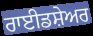
ਰਾਈਡਸ਼ੇਅਰ